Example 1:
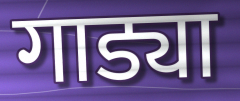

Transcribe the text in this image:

गाड्या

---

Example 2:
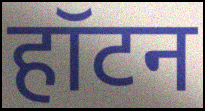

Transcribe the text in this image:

हॉटन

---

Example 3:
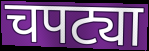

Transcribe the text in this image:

चपट्या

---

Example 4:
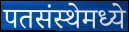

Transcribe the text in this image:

पतसंस्थेमध्ये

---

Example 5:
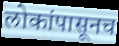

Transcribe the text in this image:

लोकांपासूनच